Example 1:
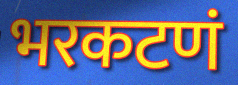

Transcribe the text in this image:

भरकटणं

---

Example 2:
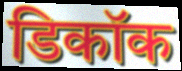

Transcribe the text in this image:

डिकॉक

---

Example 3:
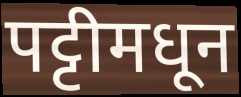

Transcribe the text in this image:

पट्टीमधून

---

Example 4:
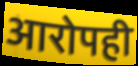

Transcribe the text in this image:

आरोपही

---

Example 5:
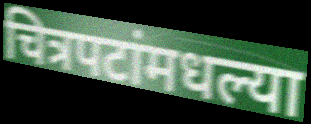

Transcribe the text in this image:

चित्रपटांमधल्या